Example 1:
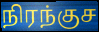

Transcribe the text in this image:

நிரந்குச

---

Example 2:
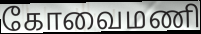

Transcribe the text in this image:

கோவைமணி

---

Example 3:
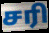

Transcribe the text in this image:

சரி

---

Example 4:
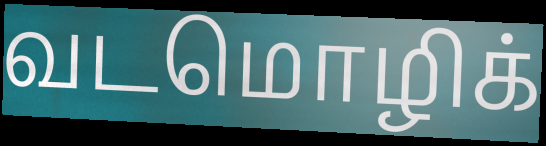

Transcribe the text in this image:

வடமொழிக்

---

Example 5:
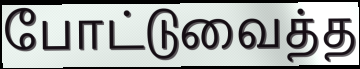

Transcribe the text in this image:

போட்டுவைத்த